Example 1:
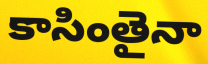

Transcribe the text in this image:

కాసింతైనా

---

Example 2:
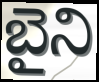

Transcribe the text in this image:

బైని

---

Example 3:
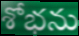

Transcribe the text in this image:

శోభను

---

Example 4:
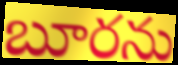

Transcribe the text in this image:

బూరను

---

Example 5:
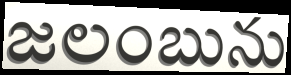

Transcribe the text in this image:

జలంబును